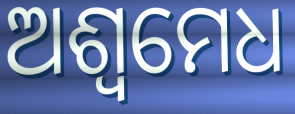
ଅଶ୍ଵମେଧ